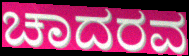
ಚಾದರವ